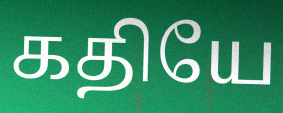
கதியே